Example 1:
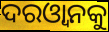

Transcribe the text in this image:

ଦରଓ୍ୱାନକୁ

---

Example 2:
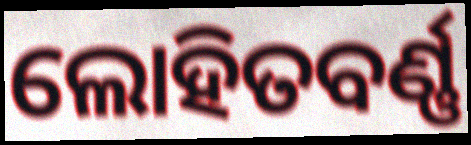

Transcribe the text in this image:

ଲୋହିତବର୍ଣ୍ଣ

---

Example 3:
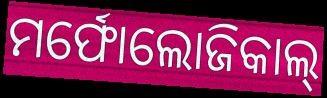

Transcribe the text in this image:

ମର୍ଫୋଲୋଜିକାଲ୍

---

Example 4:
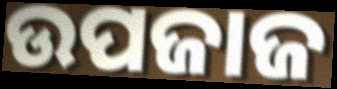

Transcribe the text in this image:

ଉପଜାଜ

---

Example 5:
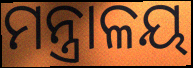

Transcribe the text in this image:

ମନ୍ତ୍ରାଳୟ